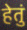
हेतुं